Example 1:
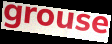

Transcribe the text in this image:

grouse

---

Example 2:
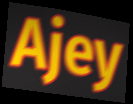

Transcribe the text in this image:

Ajey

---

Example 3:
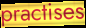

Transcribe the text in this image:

practises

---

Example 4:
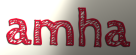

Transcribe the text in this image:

amha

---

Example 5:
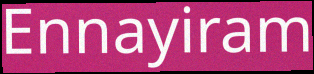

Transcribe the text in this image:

Ennayiram